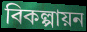
বিকল্পায়ন